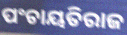
ପଂଚାୟତିରାଜ